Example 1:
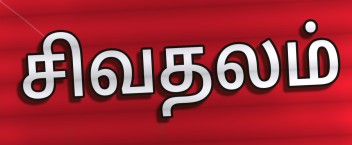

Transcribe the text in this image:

சிவதலம்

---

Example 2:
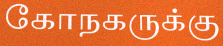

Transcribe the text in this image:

கோநகருக்கு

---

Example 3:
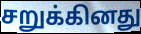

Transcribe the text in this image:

சறுக்கினது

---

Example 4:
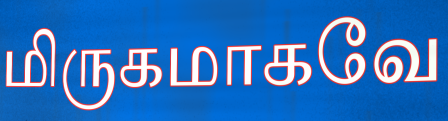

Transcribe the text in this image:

மிருகமாகவே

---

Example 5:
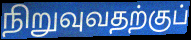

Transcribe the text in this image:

நிறுவுவதற்குப்